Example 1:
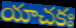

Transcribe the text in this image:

యాచకః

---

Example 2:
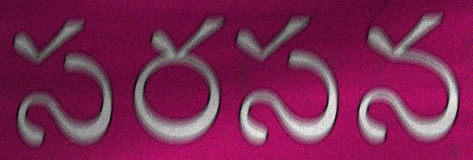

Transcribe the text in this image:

సరసన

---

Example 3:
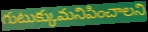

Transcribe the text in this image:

గుటుక్కుమనిపించాలని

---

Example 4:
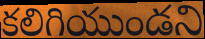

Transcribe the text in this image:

కలిగియుండని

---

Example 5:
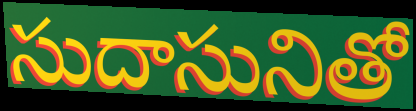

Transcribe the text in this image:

సుదాసునితో